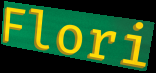
Flori